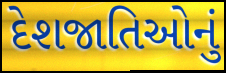
દેશજાતિઓનું